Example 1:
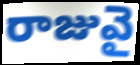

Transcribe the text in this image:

రాజువై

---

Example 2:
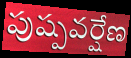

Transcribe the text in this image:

పుష్పవర్షేణ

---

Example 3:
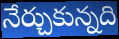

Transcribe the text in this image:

నేర్చుకున్నది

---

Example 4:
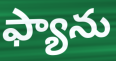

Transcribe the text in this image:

ఫ్యాను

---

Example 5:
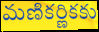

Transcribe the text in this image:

మణికర్ణికకు